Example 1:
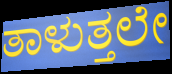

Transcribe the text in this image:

ತಾಳುತ್ತಲೇ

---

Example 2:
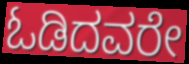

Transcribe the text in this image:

ಓಡಿದವರೇ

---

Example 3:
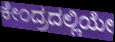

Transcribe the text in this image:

ಕೇಂದ್ರದಲ್ಲಿಯೇ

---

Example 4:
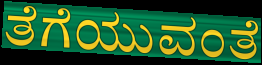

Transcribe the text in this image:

ತೆಗೆಯುವಂತೆ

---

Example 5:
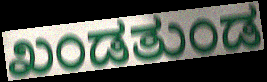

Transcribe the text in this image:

ಖಂಡತುಂಡ